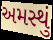
અમસ્થું